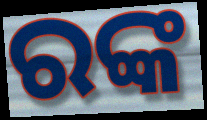
ରଙ୍କ